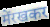
मेंरखकर